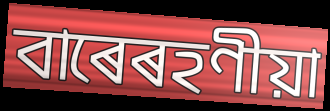
বাৰেৰহণীয়া